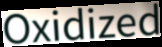
Oxidized